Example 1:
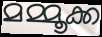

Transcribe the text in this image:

മമ്മൂക്ക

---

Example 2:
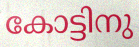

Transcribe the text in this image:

കോട്ടിനു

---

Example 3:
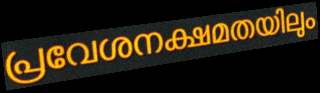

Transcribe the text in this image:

പ്രവേശനക്ഷമതയിലും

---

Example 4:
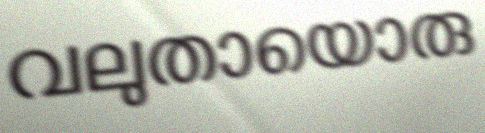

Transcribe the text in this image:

വലുതായൊരു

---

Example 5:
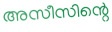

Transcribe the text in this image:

അസീസിന്റെ